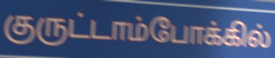
குருட்டாம்போக்கில்